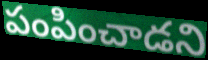
పంపించాడని